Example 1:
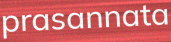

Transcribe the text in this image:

prasannata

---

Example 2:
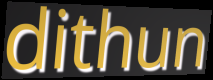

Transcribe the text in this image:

dithun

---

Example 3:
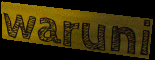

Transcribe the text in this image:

waruni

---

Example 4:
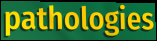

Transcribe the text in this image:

pathologies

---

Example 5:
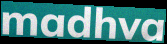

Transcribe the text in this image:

madhva